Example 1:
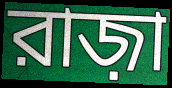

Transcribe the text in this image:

রাজ়া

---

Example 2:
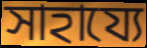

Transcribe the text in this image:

সাহায্যে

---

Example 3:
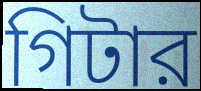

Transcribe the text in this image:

গিটার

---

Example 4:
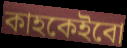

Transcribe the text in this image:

কাহকেইবো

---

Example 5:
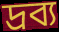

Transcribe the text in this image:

দ্রব্য